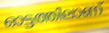
ഓട്ടത്തിലാണ്